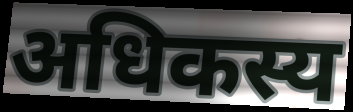
अधिकस्य